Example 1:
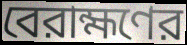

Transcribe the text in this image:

বেরাহ্মণের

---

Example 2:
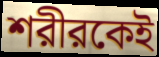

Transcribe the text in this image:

শরীরকেই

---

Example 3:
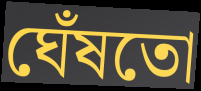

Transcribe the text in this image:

ঘেঁষতো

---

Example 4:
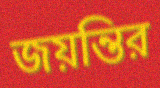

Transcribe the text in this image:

জয়ন্তির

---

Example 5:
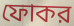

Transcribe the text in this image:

ফোকর